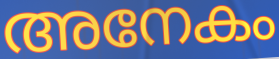
അനേകം